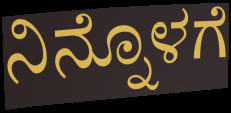
ನಿನ್ನೊಳಗೆ